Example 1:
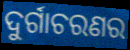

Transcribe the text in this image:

ଦୁର୍ଗାଚରଣର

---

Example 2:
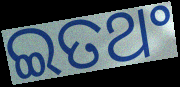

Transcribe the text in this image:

ଇତଥଂ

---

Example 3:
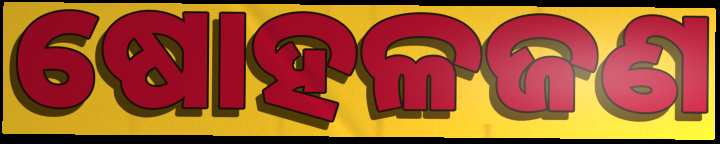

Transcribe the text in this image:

ଷୋହଳଜଣ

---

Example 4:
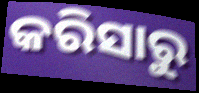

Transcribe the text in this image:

କରିସାରୁ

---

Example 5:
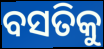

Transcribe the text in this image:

ବସତିକୁ